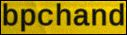
bpchand